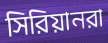
সিরিয়ানরা